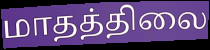
மாதத்திலை